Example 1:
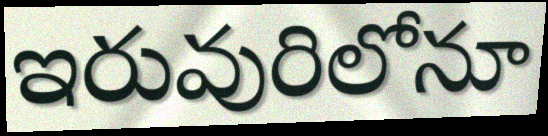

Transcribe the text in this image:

ఇరువురిలోనూ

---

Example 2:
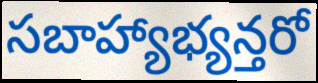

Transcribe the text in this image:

సబాహ్యాభ్యన్తరో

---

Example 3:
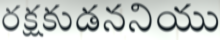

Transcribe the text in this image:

రక్షకుడననియు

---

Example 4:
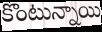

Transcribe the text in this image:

కొంటున్నాయి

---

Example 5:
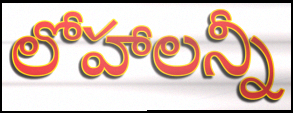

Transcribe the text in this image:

లోహాలన్నీ